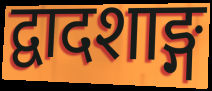
द्वादशाङ्ग